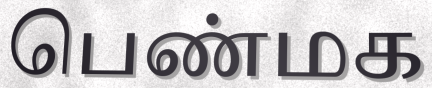
பெண்மக